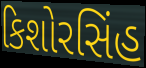
કિશોરસિંહ